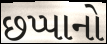
છપ્પાનો